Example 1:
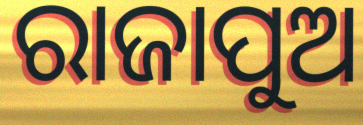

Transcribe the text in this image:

ରାଜାପୁଅ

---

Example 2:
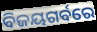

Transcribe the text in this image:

ବିଜୟଗର୍ବରେ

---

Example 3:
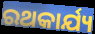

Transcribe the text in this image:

ରଥକାର୍ଯ୍ୟ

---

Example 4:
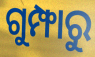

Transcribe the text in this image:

ଗୁମ୍ଫାରୁ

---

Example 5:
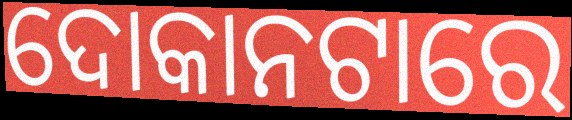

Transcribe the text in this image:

ଦୋକାନଟାରେ